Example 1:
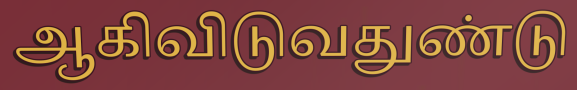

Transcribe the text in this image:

ஆகிவிடுவதுண்டு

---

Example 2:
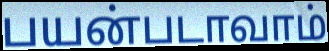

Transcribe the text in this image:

பயன்படாவாம்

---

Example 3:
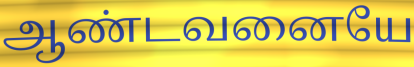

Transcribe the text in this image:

ஆண்டவனையே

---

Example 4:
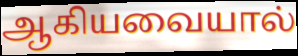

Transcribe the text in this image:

ஆகியவையால்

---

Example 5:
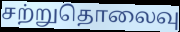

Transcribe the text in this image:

சற்றுதொலைவு